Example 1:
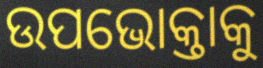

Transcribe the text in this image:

ଉପଭୋକ୍ତାକୁ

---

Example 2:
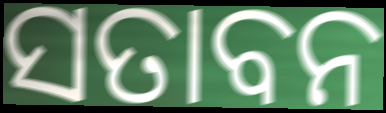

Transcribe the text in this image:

ସତାବନ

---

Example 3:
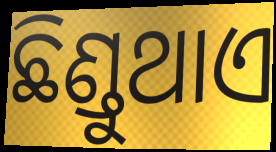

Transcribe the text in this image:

ଛିଣ୍ଡୁଥାଏ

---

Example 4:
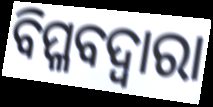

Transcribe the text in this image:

ବିପ୍ଳବଦ୍ୱାରା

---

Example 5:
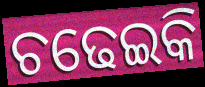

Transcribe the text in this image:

ଚଢେଇକି